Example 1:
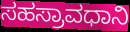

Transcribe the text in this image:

ಸಹಸ್ರಾವಧಾನಿ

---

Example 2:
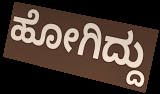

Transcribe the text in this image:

ಹೋಗಿದ್ದು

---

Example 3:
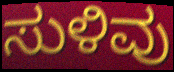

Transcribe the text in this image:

ಸುಳಿವು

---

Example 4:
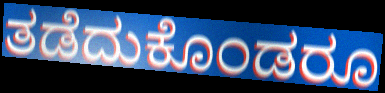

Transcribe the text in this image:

ತಡೆದುಕೊಂಡರೂ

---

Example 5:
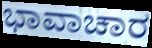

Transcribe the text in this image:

ಭಾವಾಚಾರ